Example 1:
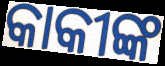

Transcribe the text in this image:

କାକୀଙ୍କ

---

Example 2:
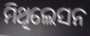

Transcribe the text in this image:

ମିଥିଲେସନ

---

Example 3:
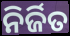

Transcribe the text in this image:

ନିର୍ଜିତ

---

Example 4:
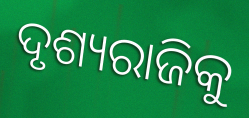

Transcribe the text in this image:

ଦୃଶ୍ୟରାଜିକୁ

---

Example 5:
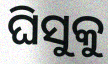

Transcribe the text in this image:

ଘିସୁକୁ